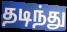
தடிந்து